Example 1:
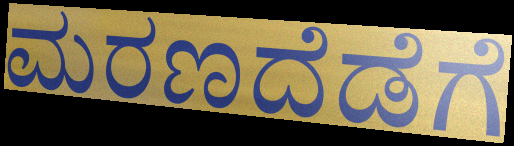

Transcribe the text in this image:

ಮರಣದೆಡೆಗೆ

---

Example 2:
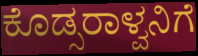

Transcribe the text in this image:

ಕೊಡ್ಸರಾಳ್ವನಿಗೆ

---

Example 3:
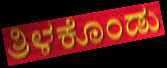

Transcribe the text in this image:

ತಿಳಕೊಂಡು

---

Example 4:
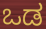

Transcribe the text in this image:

ಒಡ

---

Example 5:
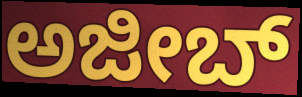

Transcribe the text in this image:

ಅಜೀಬ್